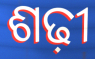
ଶଢ଼ୀ